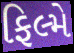
ફિલ્મે